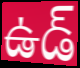
ఉడ్